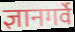
ज्ञानगर्वे